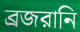
ব্রজরানি